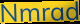
Nmrad